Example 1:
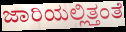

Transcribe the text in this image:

ಜಾರಿಯಲ್ಲಿತ್ತಂತೆ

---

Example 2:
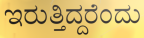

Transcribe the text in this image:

ಇರುತ್ತಿದ್ದರೆಂದು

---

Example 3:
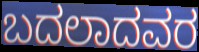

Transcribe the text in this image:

ಬದಲಾದವರ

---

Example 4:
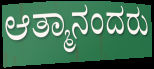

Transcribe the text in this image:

ಆತ್ಮಾನಂದರು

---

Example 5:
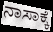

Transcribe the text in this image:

ನಾಸಾಕ್ಕೆ